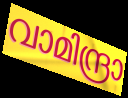
വാമിന്ദ്രാ